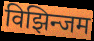
विझिन्जम